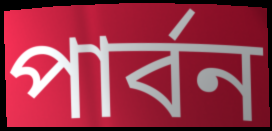
পার্বন